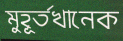
মুহূর্তখানেক